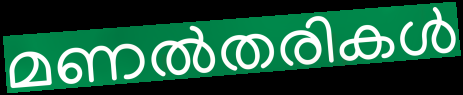
മണൽതരികൾ